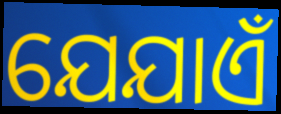
ଯେଯାଏଁ